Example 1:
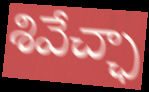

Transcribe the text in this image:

శివేచ్ఛా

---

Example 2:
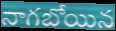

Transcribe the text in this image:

నాగబోయిన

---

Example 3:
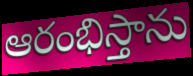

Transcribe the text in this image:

ఆరంభిస్తాను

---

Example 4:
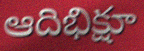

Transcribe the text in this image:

ఆదిభిక్షూ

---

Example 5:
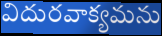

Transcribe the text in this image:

విదురవాక్యమను